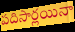
పదిసార్లయినా